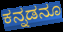
ಕನ್ನಡನೂ